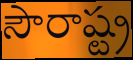
సౌరాష్ట్ర